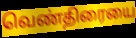
வெண்திரையை